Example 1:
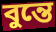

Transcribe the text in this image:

বুন্তে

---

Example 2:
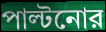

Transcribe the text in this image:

পাল্টনোর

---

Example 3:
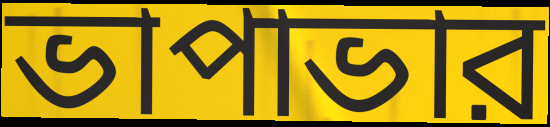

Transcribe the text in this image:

ভাপাভার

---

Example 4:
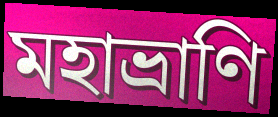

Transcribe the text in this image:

মহাভ্রাণি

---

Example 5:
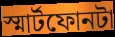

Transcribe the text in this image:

স্মার্টফোনটা